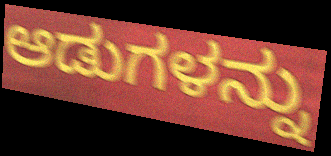
ಆಡುಗಳನ್ನು